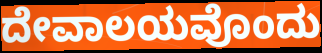
ದೇವಾಲಯವೊಂದು